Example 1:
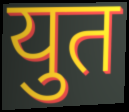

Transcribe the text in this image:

युत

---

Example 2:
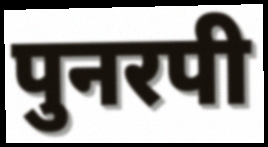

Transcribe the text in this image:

पुनरपी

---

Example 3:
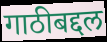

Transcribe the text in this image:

गाठीबद्दल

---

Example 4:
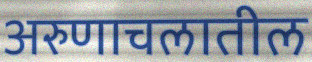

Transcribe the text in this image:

अरुणाचलातील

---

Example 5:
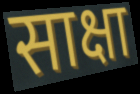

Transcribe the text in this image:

साक्षा